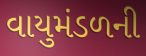
વાયુમંડળની